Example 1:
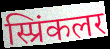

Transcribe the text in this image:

स्प्रिंकलर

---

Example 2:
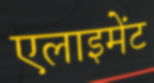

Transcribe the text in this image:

एलाइमेंट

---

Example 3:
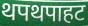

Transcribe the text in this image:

थपथपाहट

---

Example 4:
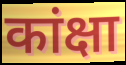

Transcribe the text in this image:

कांक्षा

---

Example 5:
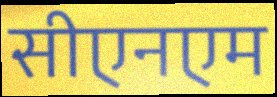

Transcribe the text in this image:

सीएनएम